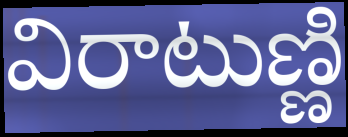
విరాటుణ్ణి